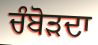
ਚੰਬੋੜਦਾ